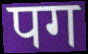
पग